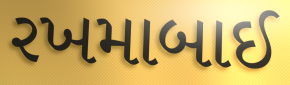
રખમાબાઈ